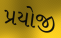
પ્રયોજી